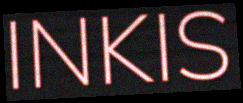
INKIS